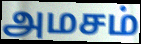
அமசம்